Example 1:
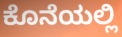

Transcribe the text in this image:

ಕೊನೆಯಲ್ಲಿ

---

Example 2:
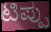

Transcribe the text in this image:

ಟಿಪ್ಪು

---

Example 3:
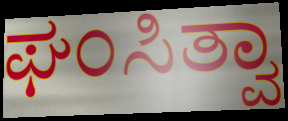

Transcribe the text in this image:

ಘಂಸಿತ್ವಾ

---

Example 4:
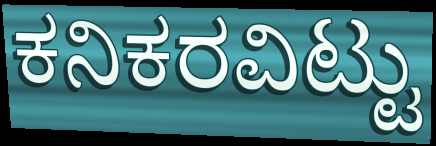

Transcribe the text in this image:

ಕನಿಕರವಿಟ್ಟು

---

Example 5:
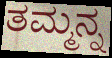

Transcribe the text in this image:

ತಮ್ಮನ್ನ